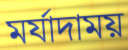
মর্যাদাময়